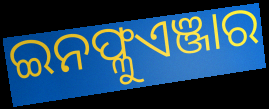
ଇନଫ୍ଳୁଏଞ୍ଜାର